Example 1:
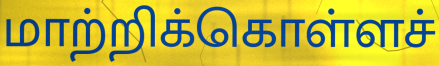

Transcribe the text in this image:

மாற்றிக்கொள்ளச்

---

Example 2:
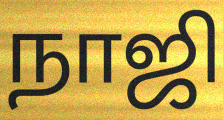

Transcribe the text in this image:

நாஜி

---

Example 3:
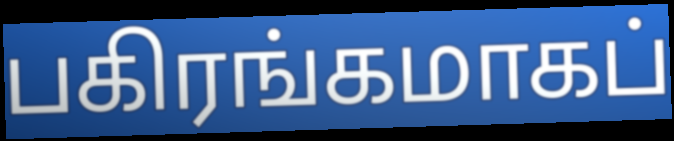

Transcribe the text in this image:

பகிரங்கமாகப்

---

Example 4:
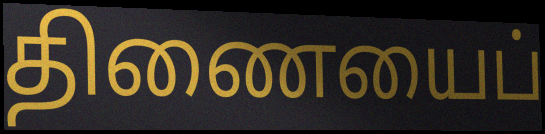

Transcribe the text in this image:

திணையைப்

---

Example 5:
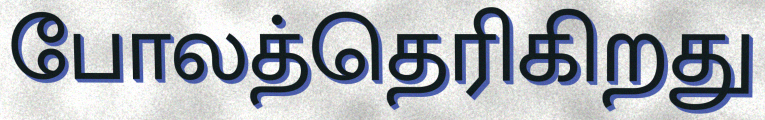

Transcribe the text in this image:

போலத்தெரிகிறது